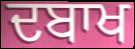
ਦਬਾਖ